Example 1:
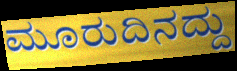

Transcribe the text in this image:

ಮೂರುದಿನದ್ದು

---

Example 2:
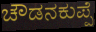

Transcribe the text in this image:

ಚೌಡನಕುಪ್ಪೆ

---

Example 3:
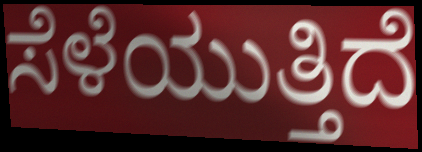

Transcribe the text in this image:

ಸೆಳೆಯುತ್ತಿದೆ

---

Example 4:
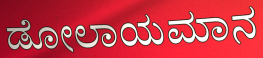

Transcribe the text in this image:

ಡೋಲಾಯಮಾನ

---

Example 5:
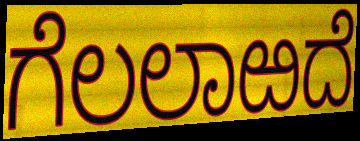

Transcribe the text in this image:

ಗೆಲಲಾಱದೆ